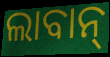
ଲାବାନ୍